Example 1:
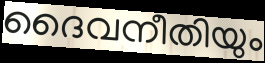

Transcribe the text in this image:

ദൈവനീതിയും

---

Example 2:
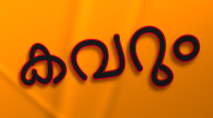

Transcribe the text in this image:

കവറും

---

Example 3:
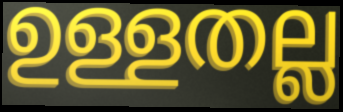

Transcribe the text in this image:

ഉള്ളതല്ല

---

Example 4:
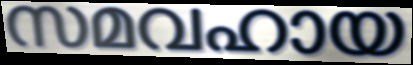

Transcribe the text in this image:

സമവഹായ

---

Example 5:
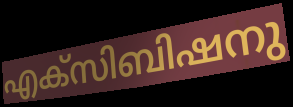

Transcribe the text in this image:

എക്സിബിഷനു